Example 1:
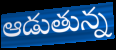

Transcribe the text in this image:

ఆడుతున్న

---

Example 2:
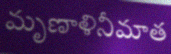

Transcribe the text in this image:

మృణాళినీమాత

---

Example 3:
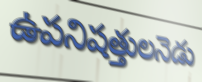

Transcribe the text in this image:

ఉపనిషత్తులనెడు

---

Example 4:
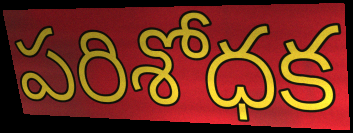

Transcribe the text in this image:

పరిశోధక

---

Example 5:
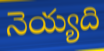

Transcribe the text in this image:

నెయ్యది